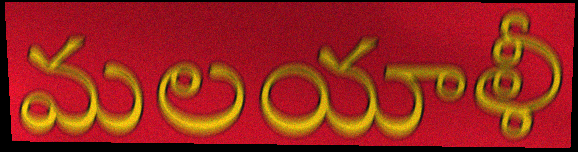
మలయాళీ